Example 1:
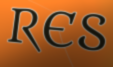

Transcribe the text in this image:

RES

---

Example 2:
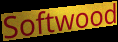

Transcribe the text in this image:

Softwood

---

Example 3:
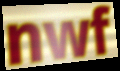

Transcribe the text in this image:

nwf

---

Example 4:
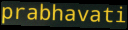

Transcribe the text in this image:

prabhavati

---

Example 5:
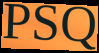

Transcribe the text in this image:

PSQ